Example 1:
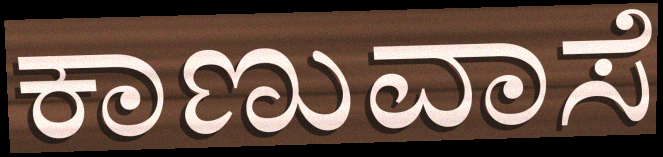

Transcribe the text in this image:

ಕಾಣುವಾಸೆ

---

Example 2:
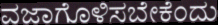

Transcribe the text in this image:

ವಜಾಗೊಳಿಸಬೇಕೆಂದು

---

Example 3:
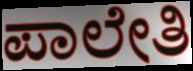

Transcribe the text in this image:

ಪಾಲೇತಿ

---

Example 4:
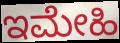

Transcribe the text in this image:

ಇಮೇಹಿ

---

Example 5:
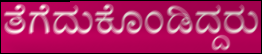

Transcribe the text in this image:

ತೆಗೆದುಕೊಂಡಿದ್ದರು